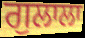
ਗੁਲਾਲਾ